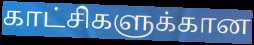
காட்சிகளுக்கான